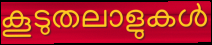
കൂടുതലാളുകൾ